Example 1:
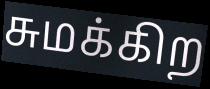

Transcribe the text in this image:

சுமக்கிற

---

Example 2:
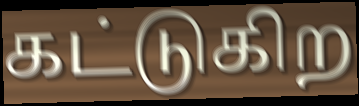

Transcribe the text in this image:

கட்டுகிற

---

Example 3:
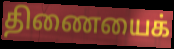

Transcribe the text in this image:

திணையைக்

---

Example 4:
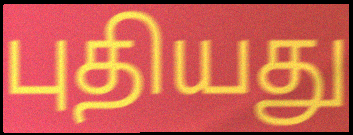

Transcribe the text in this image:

புதியது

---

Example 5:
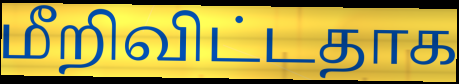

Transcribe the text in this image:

மீறிவிட்டதாக